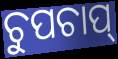
ଚୁପଚାପ୍